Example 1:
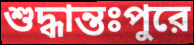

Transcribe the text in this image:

শুদ্ধান্তঃপুরে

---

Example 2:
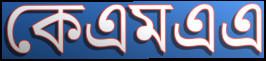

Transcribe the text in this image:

কেএমএএ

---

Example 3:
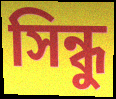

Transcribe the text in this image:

সিন্ধু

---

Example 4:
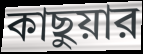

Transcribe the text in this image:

কাছুয়ার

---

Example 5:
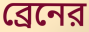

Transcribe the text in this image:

ব্রেনের